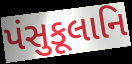
પંસુકૂલાનિ